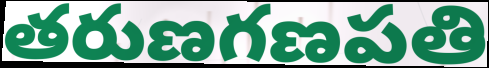
తరుణగణపతి